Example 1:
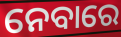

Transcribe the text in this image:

ନେବାରେ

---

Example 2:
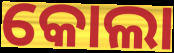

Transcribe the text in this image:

କୋଲା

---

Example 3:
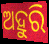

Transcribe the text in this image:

ଅହୁରି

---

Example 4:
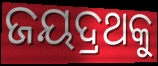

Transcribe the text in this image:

ଜୟଦ୍ରଥକୁ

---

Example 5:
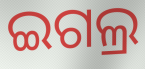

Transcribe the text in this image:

ଇଗଲ୍ର